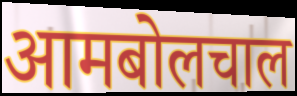
आमबोलचाल